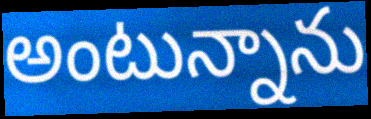
అంటున్నాను